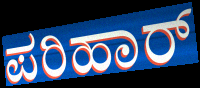
ಪರಿಹಾರ್